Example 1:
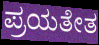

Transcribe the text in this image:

ಪ್ರಯತೇತ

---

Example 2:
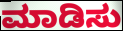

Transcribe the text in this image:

ಮಾಡಿಸು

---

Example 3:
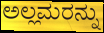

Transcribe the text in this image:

ಅಲ್ಲಮರನ್ನು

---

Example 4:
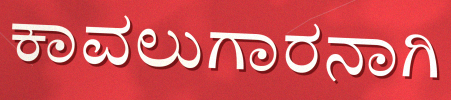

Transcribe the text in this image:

ಕಾವಲುಗಾರನಾಗಿ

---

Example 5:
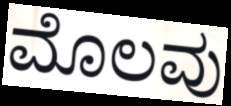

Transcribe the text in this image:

ಮೊಲವು